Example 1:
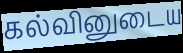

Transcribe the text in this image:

கல்வினுடைய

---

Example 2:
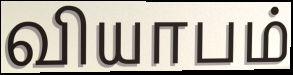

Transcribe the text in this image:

வியாபம்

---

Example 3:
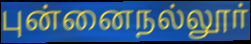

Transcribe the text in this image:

புன்னைநல்லூர்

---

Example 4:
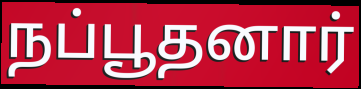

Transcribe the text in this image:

நப்பூதனார்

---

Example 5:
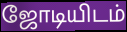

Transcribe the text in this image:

ஜோடியிடம்